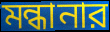
মন্ধানার